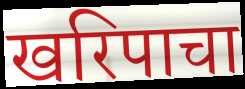
खरिपाचा